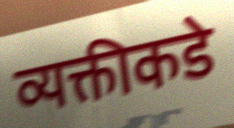
व्यक्तीकडे